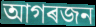
আগৰজন